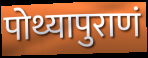
पोथ्यापुराणं